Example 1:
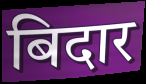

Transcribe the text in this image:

बिदार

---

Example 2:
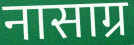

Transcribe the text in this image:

नासाग्र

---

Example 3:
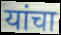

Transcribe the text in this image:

यांचा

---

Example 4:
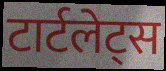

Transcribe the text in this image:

टार्टलेट्स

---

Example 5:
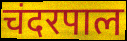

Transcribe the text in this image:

चंदरपाल